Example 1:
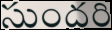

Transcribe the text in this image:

సుందరి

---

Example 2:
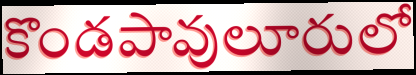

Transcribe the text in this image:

కొండపావులూరులో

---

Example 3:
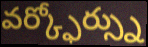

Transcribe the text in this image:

వర్క్ఫోర్స్ను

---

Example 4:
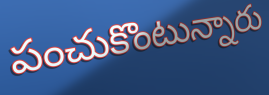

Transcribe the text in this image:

పంచుకొంటున్నారు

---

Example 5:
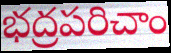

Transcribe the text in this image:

భద్రపరిచాం